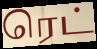
ரெட்